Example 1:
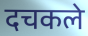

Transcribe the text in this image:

दचकले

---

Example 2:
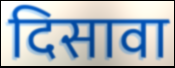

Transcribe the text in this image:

दिसावा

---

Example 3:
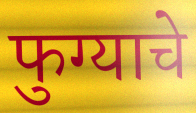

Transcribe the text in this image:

फुग्याचे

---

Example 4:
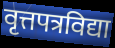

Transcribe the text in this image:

वृत्तपत्रविद्या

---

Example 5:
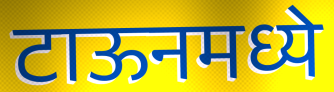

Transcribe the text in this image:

टाऊनमध्ये